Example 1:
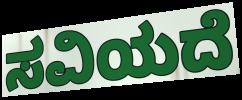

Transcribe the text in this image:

ಸವಿಯದೆ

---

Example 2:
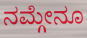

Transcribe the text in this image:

ನಮ್ಗೇನೂ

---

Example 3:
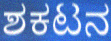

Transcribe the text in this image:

ಶಕಟನ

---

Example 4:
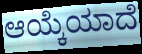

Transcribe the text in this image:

ಆಯ್ಕೆಯಾದೆ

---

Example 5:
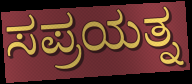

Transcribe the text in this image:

ಸಪ್ರಯತ್ನ